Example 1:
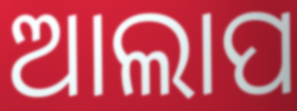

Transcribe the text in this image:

ଆଲାପ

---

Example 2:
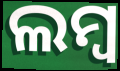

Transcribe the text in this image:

ଲମ୍ବ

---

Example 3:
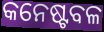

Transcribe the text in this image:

କନେଷ୍ଟବଳ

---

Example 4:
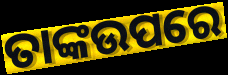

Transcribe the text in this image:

ତାଙ୍କଉପରେ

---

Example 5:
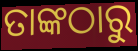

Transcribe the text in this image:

ତାଙ୍କଠାରୁ